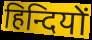
हिन्दियों